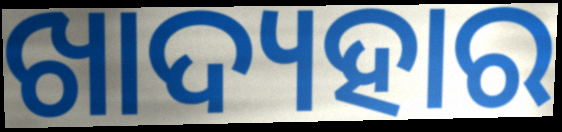
ଖାଦ୍ୟହାର